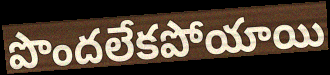
పొందలేకపోయాయి